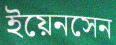
ইয়েনসেন